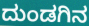
ದುಂಡಗಿನ